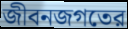
জীবনজগতের